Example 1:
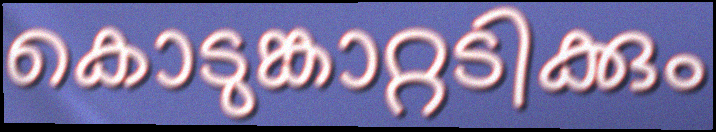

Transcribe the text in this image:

കൊടുങ്കാറ്റടിക്കും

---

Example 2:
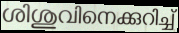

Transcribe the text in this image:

ശിശുവിനെക്കുറിച്ച്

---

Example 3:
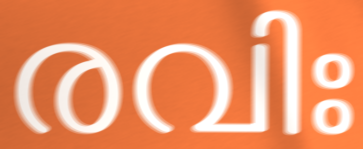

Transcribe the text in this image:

രവിഃ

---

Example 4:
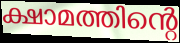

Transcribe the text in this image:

ക്ഷാമത്തിന്റെ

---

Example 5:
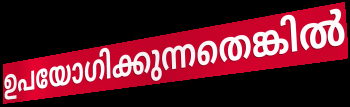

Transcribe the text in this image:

ഉപയോഗിക്കുന്നതെങ്കിൽ